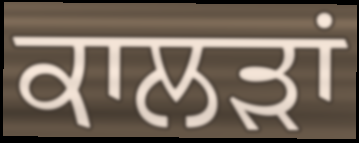
ਕਾਲੜਾਂ